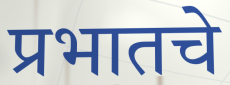
प्रभातचे